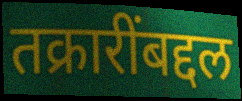
तक्रारींबद्दल